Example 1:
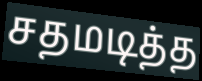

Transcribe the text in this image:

சதமடித்த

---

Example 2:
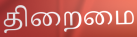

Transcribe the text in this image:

திறைமை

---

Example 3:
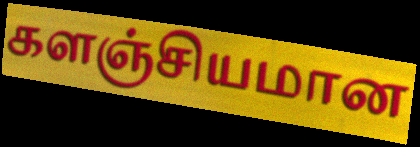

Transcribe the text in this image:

களஞ்சியமான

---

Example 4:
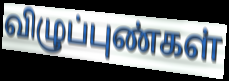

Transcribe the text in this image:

விழுப்புண்கள்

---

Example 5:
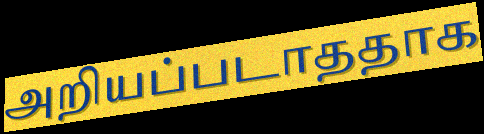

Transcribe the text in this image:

அறியப்படாததாக